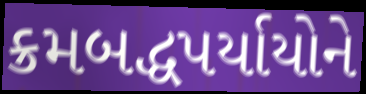
ક્રમબદ્ધપર્યાયોને